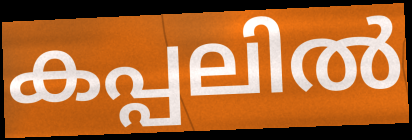
കപ്പലിൽ